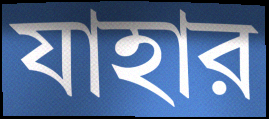
যাহার